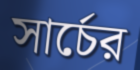
সার্চের